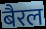
बैरल